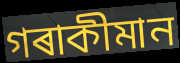
গৰাকীমান